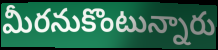
మీరనుకొంటున్నారు